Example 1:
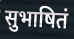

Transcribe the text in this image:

सुभाषितं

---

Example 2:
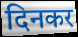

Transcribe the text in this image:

दिनकर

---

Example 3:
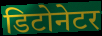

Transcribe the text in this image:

डिटोनेटर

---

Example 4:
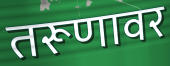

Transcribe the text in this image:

तरूणावर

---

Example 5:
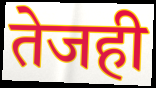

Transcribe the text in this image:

तेजही